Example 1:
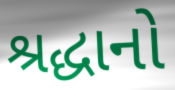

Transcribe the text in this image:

શ્રદ્ધાનો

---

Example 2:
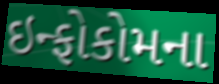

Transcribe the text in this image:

ઇન્ફોકોમના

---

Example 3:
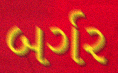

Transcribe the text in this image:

બર્ગર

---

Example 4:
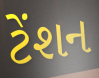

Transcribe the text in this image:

ટેંશન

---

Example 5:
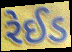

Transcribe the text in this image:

રેઈડ